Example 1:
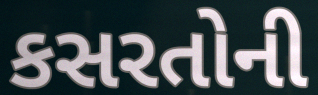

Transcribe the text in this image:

કસરતોની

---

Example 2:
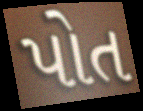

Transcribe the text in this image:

પોત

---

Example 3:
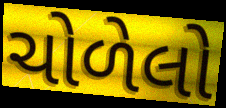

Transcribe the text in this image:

ચોળેલો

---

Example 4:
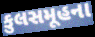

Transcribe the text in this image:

કુલસમૂહના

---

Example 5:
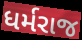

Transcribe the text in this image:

ધર્મરાજ